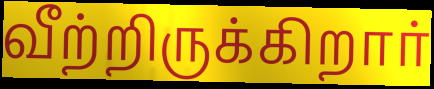
வீற்றிருக்கிறார்